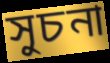
সুচনা